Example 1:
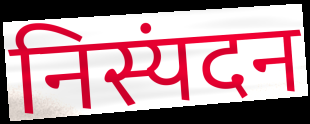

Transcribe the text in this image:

निस्यंदन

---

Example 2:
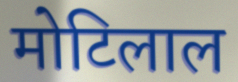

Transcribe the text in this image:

मोटिलाल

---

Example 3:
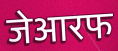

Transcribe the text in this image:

जेआरफ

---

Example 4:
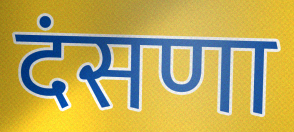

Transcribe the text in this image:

दंसणा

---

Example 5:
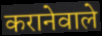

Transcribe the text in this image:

करानेवाले